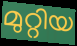
മുറ്റിയ